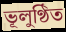
ভূলুণ্ঠিত